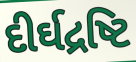
દીર્ઘદ્રષ્ટિ